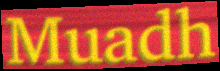
Muadh